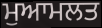
ਮੁਆਮਲਤ